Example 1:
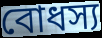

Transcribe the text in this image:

বোধস্য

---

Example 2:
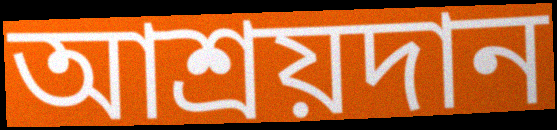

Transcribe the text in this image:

আশ্রয়দান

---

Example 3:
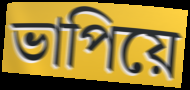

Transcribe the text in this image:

ভাপিয়ে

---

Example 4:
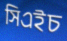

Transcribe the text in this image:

সিএইচ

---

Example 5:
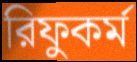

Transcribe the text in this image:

রিফুকর্ম